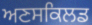
ਅਣਸਕਿਲਡ